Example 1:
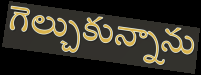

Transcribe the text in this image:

గెల్చుకున్నాను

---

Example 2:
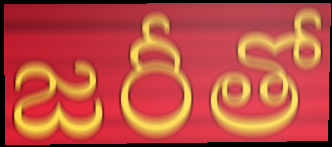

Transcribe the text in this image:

జరీతో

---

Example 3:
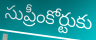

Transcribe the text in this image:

సుప్రీంకోర్టుకు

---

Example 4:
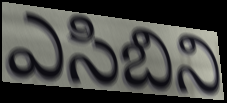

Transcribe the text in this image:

ఎసిబిని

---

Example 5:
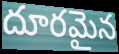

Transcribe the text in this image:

దూరమైన